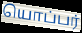
யொப்பர்